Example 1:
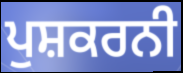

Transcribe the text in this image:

ਪੁਸ਼ਕਰਨੀ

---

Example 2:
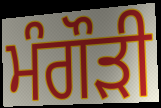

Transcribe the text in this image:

ਮੰਗੌੜੀ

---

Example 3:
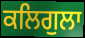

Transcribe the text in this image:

ਕਲਿਗੁਲਾ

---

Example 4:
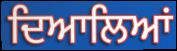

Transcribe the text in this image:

ਦਿਆਲਿਆਂ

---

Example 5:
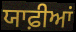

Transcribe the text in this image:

ਯਾਫ਼ੀਆਂ